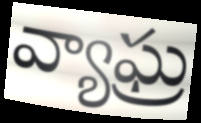
వ్యాఘ్ర